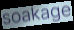
soakage